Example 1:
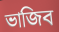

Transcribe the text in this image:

ভাজিব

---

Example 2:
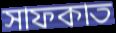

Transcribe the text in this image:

সাফকাত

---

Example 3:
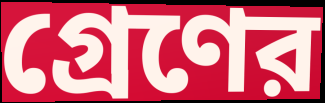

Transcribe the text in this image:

গ্রেণের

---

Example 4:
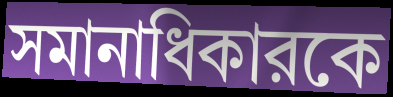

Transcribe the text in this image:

সমানাধিকারকে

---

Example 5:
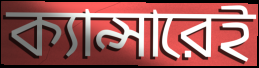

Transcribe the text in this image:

ক্যান্সারেই